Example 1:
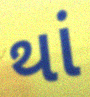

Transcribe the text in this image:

થાં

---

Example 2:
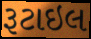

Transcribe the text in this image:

રૂટાઇલ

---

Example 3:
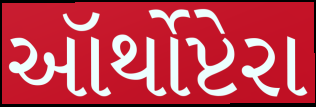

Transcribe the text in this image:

ઑર્થોપ્ટેરા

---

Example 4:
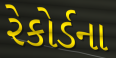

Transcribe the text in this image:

રેકોર્ડના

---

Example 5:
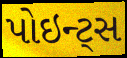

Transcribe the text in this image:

પોઇન્ટ્સ